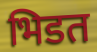
भिडत